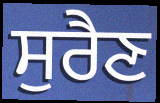
ਸੁਰੈਣ